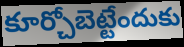
కూర్చోబెట్టేందుకు